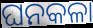
ଘନକଳା